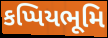
કપ્પિયભૂમિ